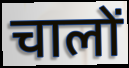
चालों